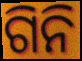
ଗିନି